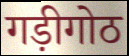
गड़ीगोठ